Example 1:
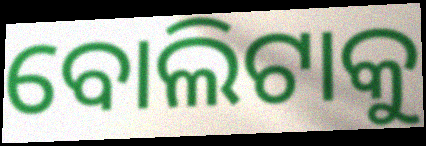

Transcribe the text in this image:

ବୋଲିଟାକୁ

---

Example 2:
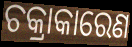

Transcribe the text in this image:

ଚକ୍ରାକାରେଣ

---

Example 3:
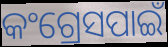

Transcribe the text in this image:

କଂଗ୍ରେସପାଇଁ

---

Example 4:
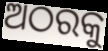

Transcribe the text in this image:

ଅଠରକୁ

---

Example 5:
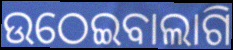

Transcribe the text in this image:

ଉଠେଇବାଲାଗି